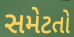
સમેટતો